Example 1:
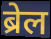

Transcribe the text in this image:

ब्रेल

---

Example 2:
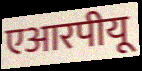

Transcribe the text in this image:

एआरपीयू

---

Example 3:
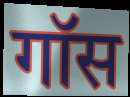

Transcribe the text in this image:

गॉस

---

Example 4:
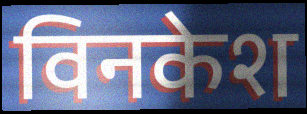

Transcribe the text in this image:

विनकेश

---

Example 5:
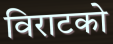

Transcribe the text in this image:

विराटको